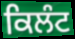
ਕਿਲੰਟ